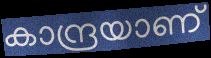
കാന്ദ്രയാണ്